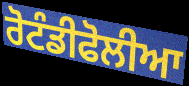
ਰੋਟੰਡੀਫੋਲੀਆ